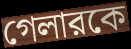
গেলারকে